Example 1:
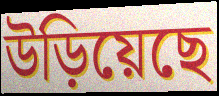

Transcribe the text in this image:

উড়িয়েছে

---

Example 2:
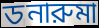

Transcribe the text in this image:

ডনারুমা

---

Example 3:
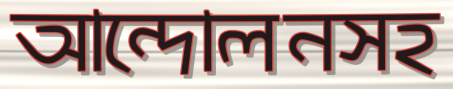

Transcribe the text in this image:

আন্দোলনসহ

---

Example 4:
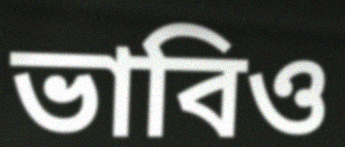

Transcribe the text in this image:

ভাবিও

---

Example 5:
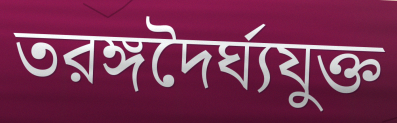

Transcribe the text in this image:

তরঙ্গদৈর্ঘ্যযুক্ত